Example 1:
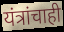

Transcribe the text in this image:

यंत्रांचाही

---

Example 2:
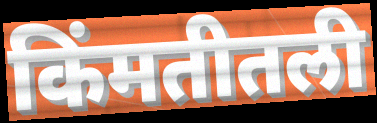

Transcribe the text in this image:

किंमतीतली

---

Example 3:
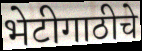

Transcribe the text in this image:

भेटीगाठीचे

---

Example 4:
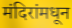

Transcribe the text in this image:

मंदिरांमधून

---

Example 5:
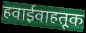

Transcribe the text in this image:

हवाईवाहतूक